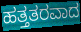
ಹತ್ತತರವಾದ